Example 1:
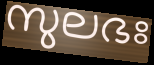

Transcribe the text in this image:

സുലഭഃ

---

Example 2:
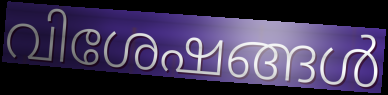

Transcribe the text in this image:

വിശേഷങ്ങൾ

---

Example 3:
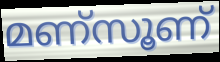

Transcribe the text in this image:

മണ്സൂണ്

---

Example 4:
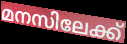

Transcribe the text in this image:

മനസിലേക്ക്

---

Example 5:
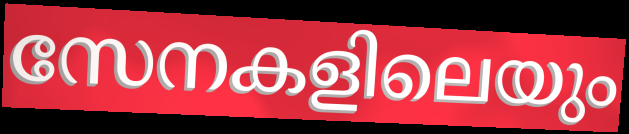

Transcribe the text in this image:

സേനകളിലെയും